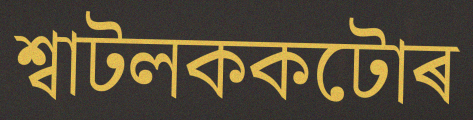
শ্বাটলককটোৰ